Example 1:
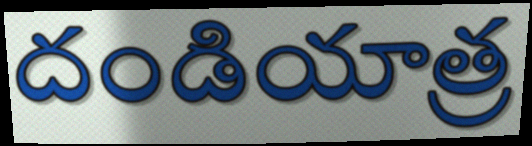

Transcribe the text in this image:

దండియాత్ర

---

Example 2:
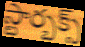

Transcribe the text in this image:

స్టార్బక్స్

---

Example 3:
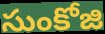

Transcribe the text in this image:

సుంకోజి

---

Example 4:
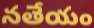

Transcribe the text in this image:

నతేయం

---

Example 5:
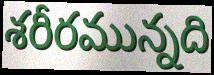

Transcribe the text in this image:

శరీరమున్నది